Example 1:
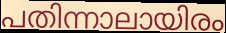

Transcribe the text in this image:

പതിന്നാലായിരം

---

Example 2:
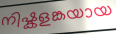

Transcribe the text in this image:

നിഷ്കളങ്കയായ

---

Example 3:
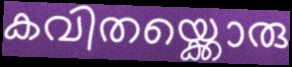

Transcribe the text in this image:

കവിതയ്ക്കൊരു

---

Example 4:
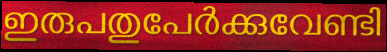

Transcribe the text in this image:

ഇരുപതുപേർക്കുവേണ്ടി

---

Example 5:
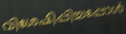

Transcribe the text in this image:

വിശേഷിപ്പിച്ചപ്പോൾ